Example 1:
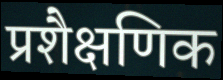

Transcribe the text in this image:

प्रशैक्षणिक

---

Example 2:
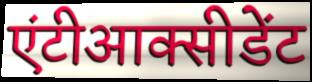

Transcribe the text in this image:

एंटीआक्सीडेंट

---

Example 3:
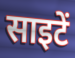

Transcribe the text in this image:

साइटें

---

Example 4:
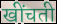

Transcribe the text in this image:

खींचती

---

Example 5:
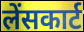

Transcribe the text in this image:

लेंसकार्ट